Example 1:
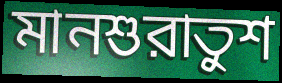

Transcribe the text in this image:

মানশুরাতুশ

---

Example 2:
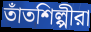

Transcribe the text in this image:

তাঁতশিল্পীরা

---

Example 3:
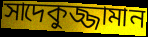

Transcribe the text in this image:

সাদেকুজ্জামান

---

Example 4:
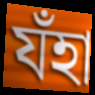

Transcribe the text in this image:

যঁহা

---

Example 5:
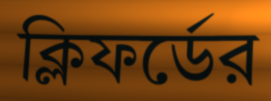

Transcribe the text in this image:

ক্লিফর্ডের